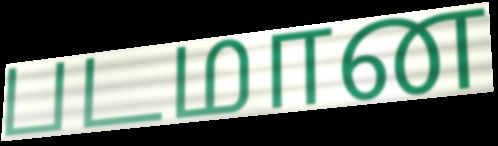
படமான